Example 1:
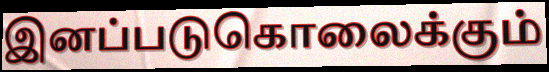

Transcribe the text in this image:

இனப்படுகொலைக்கும்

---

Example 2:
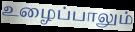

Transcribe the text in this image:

உழைப்பாலும்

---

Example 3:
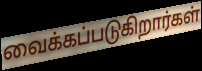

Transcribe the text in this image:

வைக்கப்படுகிறார்கள்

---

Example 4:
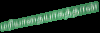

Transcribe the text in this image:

மரியாதையாகத்தான்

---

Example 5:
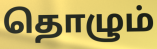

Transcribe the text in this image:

தொழும்